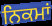
ਨਿਕਮਾਂ